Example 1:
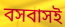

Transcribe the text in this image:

বসবাসই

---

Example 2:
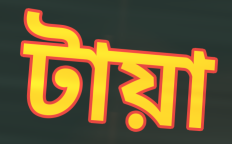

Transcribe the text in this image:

টায়া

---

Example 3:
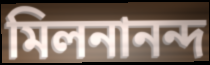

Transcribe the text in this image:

মিলনানন্দ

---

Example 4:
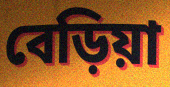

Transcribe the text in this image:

বেড়িয়া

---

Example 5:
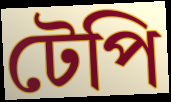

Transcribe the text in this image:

টেপি